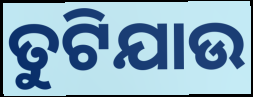
ତୁଟିଯାଉ